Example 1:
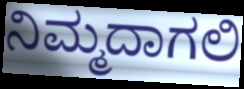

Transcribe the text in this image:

ನಿಮ್ಮದಾಗಲಿ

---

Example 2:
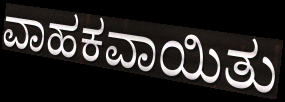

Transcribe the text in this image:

ವಾಹಕವಾಯಿತು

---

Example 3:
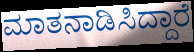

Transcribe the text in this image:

ಮಾತನಾಡಿಸಿದ್ದಾರೆ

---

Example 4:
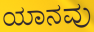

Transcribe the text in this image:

ಯಾನವು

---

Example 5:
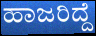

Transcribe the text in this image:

ಹಾಜರಿದ್ದೆ